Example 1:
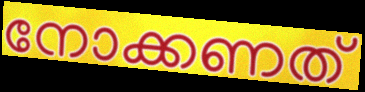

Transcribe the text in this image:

നോക്കണത്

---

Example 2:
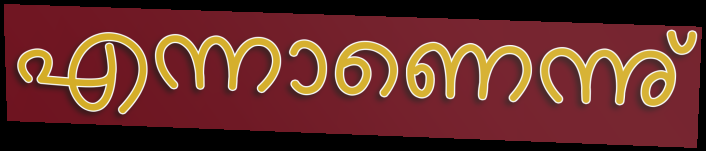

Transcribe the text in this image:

എന്നാണെന്നു്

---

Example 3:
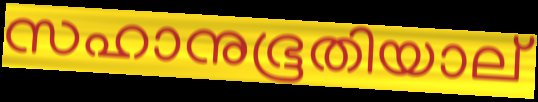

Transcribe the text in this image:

സഹാനുഭൂതിയാല്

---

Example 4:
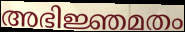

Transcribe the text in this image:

അഭിജ്ഞമതം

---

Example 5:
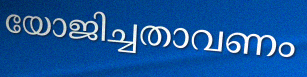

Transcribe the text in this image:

യോജിച്ചതാവണം